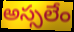
అస్సలేం